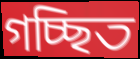
গচ্ছিত